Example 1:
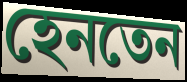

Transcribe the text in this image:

হেনতেন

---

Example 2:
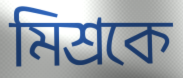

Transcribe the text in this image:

মিশ্রকে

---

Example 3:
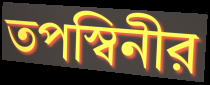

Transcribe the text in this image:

তপস্বিনীর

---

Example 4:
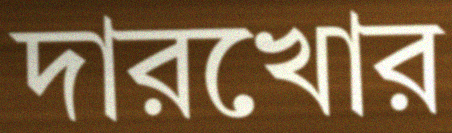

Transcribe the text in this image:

দারখোর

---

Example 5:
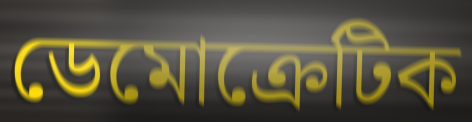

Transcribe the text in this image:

ডেমোক্রেটিক